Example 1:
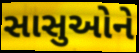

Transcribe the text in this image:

સાસુઓને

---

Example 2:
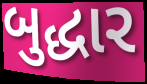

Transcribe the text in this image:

બુદ્ધાર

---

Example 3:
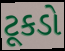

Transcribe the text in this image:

ટૂકડો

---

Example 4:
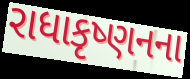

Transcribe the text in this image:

રાધાકૃષ્ણનના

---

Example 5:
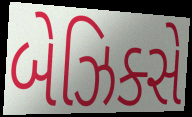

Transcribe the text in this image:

બેઝિક્સે